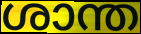
ശാന്ത